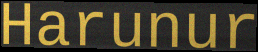
Harunur